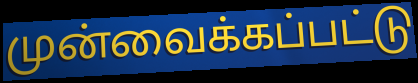
முன்வைக்கப்பட்டு